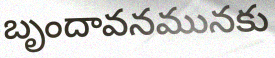
బృందావనమునకు